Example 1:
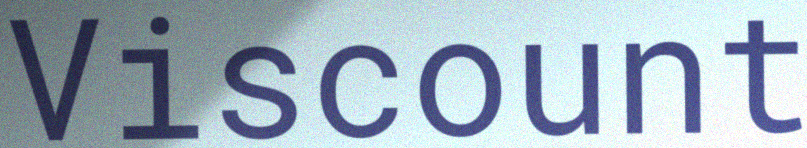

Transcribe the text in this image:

Viscount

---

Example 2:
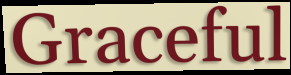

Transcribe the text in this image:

Graceful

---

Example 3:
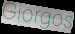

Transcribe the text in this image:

Giorgos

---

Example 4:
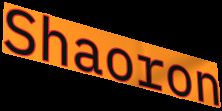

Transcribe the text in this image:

Shaoron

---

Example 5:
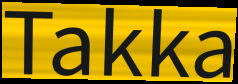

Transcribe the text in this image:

Takka